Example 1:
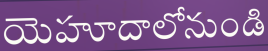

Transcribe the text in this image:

యెహూదాలోనుండి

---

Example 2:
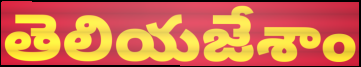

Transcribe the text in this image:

తెలియజేశాం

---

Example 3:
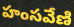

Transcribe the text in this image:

హంసవేణి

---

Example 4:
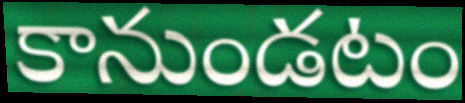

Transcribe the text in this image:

కానుండటం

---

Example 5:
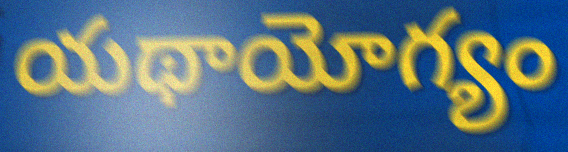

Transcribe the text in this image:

యథాయోగ్యం